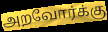
அறவோர்க்கு